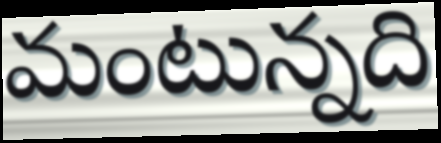
మంటున్నది